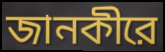
জানকীরে